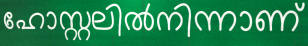
ഹോസ്റ്റലിൽനിന്നാണ്